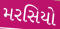
મરસિયો